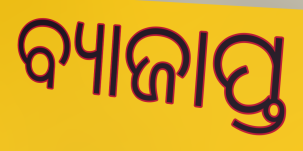
ବ୍ୟାଜାପ୍ତ